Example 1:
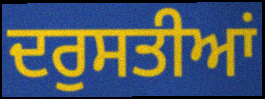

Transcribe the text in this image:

ਦਰੁਸਤੀਆਂ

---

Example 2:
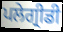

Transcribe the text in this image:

ਪਲੇਗ੍ਰੀਡੀ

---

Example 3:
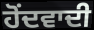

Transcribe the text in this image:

ਹੋਂਦਵਾਦੀ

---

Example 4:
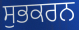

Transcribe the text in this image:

ਸੁਭਕਰਨ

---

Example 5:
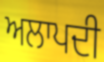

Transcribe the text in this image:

ਅਲਾਪਦੀ